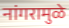
नांगरामुळे